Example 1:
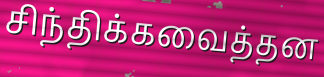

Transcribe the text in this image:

சிந்திக்கவைத்தன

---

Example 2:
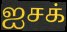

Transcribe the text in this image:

ஐசக்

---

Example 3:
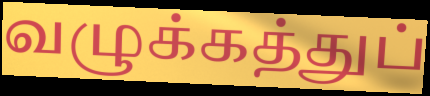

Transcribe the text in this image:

வழுக்கத்துப்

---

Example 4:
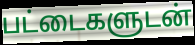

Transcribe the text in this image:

பட்டைகளுடன்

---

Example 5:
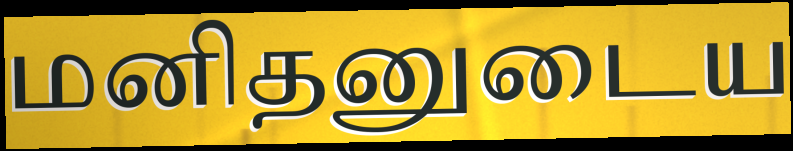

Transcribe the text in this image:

மனிதனுடைய